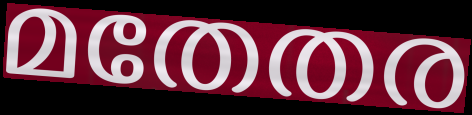
മതേതര